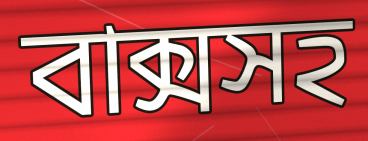
বাক্সসহ